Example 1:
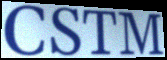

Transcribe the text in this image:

CSTM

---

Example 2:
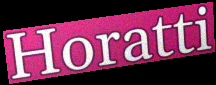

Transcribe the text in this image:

Horatti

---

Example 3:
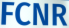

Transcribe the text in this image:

FCNR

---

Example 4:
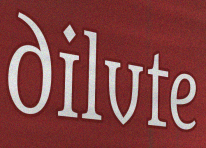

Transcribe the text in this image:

dilute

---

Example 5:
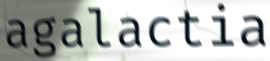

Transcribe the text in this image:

agalactia